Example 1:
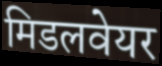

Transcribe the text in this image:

मिडलवेयर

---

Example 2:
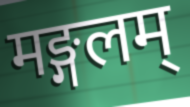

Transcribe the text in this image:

मङ्गलम्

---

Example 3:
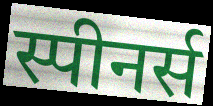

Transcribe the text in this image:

स्पीनर्स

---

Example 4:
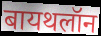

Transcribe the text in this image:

बायथलॉन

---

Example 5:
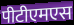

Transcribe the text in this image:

पीटीएमएस